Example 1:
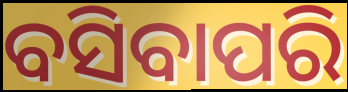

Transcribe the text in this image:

ବସିବାପରି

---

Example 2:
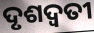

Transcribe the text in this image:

ଦୃଶଦ୍ୱତୀ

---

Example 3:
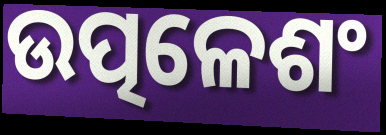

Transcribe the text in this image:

ଉତ୍ପଳେଶଂ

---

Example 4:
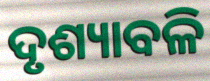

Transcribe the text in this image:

ଦୃଶ୍ୟାବଳି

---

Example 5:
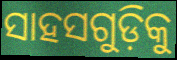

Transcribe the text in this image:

ସାହସଗୁଡ଼ିକୁ